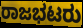
ರಾಜಭಟರು